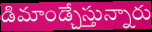
డిమాండ్చేస్తున్నారు